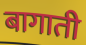
बागाती